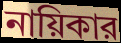
নায়িকার